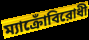
ম্যাক্রোঁবিরোধী